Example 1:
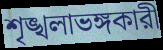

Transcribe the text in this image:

শৃঙ্খলাভঙ্গকারী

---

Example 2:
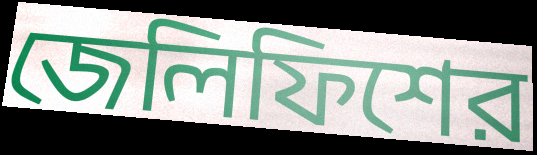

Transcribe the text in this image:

জেলিফিশের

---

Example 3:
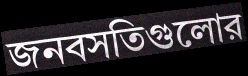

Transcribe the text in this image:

জনবসতিগুলোর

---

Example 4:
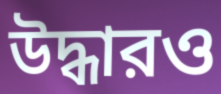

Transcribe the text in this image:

উদ্ধারও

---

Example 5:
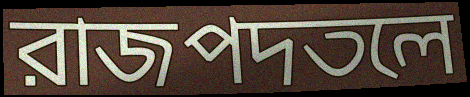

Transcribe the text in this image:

রাজপদতলে